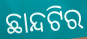
ଛାନ୍ଦଟିର